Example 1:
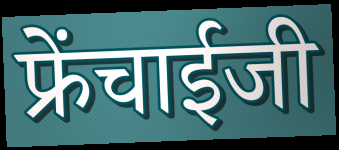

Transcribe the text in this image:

फ्रेंचाईजी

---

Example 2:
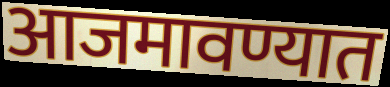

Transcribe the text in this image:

आजमावण्यात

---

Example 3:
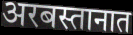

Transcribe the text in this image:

अरबस्तानात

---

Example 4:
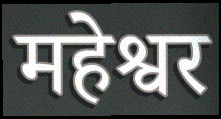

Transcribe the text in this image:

महेश्वर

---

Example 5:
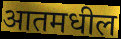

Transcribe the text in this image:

आतमधील